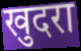
खुदरा